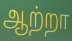
ஆற்றா